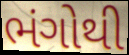
ભંગોથી